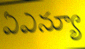
ఏఎన్యూ